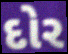
દોર